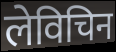
लेविचिन